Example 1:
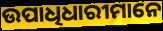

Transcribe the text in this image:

ଉପାଧିଧାରୀମାନେ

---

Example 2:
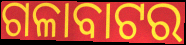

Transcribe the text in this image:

ଗଳାବାଟର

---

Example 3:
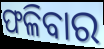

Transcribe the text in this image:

ଫଳିବାର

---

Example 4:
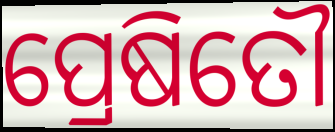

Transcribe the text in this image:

ପ୍ରେଷିତୌ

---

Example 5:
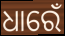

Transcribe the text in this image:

ଧାରେଁ